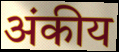
अंकीय